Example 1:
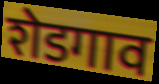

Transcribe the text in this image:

शेडगाव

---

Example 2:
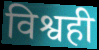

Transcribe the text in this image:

विश्वही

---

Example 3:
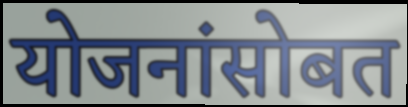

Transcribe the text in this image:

योजनांसोबत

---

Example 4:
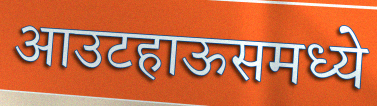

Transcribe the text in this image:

आउटहाऊसमध्ये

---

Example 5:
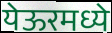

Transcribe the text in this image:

येऊरमध्ये